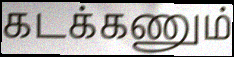
கடக்கணும்